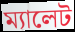
ম্যালেট